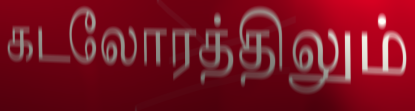
கடலோரத்திலும்